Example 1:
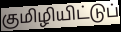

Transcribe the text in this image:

குமிழியிட்டுப்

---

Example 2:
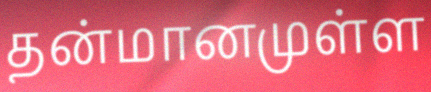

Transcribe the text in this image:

தன்மானமுள்ள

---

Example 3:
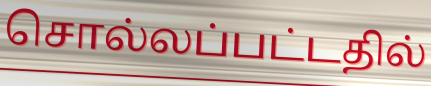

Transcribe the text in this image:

சொல்லப்பட்டதில்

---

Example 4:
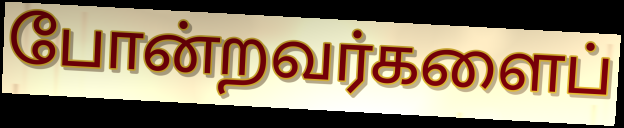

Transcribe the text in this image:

போன்றவர்களைப்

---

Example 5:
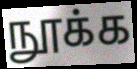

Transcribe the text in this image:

நூக்க